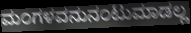
ಮಂಗಳವನುನಂಟುಮಾಡಲ್ಲ